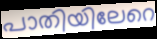
പാതിയിലേറെ